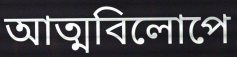
আত্মবিলোপে